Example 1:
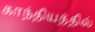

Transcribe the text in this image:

காந்தியத்தில்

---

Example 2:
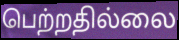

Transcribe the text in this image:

பெற்றதில்லை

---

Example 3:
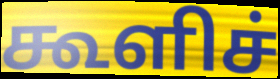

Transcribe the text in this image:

கூளிச்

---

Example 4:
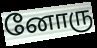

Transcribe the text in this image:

னோரு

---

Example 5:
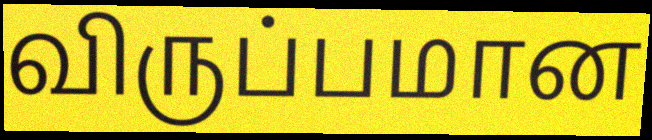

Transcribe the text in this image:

விருப்பமான